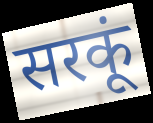
सरकूं